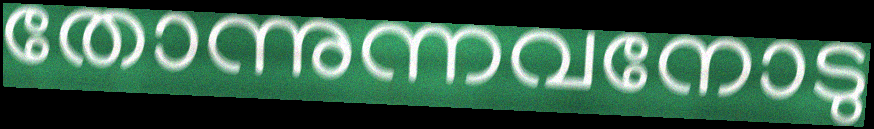
തോന്നുന്നവനോടു